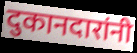
दुकानदारांनी